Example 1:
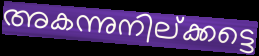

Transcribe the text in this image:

അകന്നുനില്ക്കട്ടെ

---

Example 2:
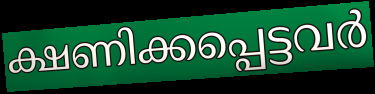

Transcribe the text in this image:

ക്ഷണിക്കപ്പെട്ടവർ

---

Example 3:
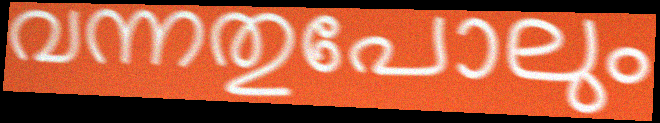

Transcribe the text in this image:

വന്നതുപോലും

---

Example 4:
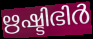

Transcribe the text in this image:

ഋഷ്ടിഭിർ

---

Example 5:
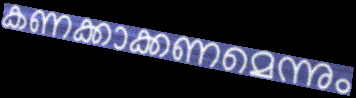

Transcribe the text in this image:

കണക്കാക്കണമെന്നും